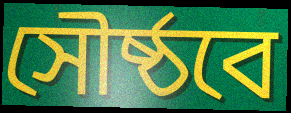
সৌষ্ঠবে